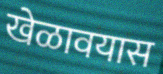
खेळावयास